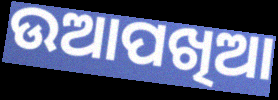
ଉଆପଖିଆ